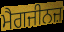
ਮੈਗਜੀਨਜ਼